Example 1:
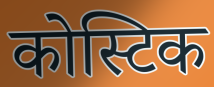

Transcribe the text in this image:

कोस्टिक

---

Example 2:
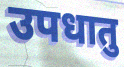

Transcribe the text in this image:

उपधातु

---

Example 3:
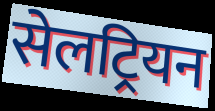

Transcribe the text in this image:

सेलट्रियन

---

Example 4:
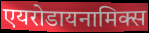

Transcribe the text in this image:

एयरोडायनामिक्स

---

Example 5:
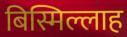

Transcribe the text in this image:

बिस्मिल्लाह